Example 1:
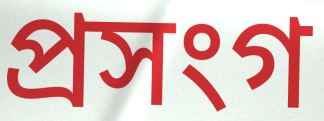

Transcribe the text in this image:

প্ৰসংগ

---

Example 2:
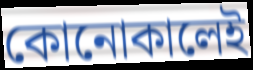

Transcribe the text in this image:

কোনোকালেই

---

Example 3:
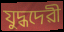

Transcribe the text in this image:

যুদ্ধদেৱী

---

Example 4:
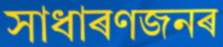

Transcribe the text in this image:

সাধাৰণজনৰ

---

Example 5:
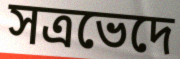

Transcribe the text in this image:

সত্ৰভেদে